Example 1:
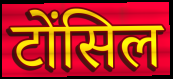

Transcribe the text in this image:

टोंसिल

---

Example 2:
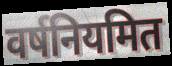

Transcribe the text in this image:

वर्षनियमित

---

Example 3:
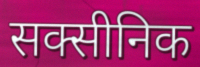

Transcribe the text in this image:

सक्सीनिक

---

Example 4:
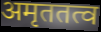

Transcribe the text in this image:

अमृततत्व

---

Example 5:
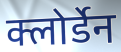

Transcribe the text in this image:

क्लोर्डेन